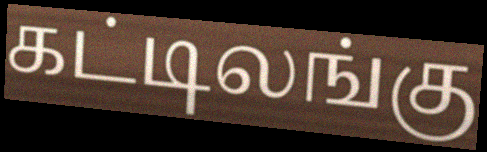
கட்டிலங்கு